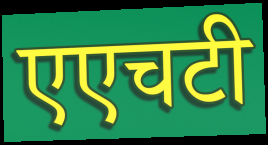
एएचटी